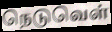
நெடுவெள்